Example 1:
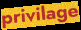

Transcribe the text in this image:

privilage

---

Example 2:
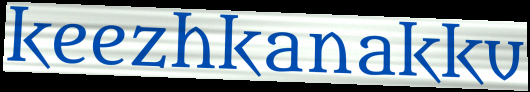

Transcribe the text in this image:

keezhkanakku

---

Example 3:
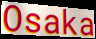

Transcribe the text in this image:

Osaka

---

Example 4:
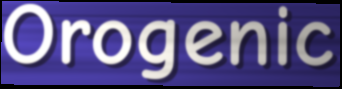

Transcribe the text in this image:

Orogenic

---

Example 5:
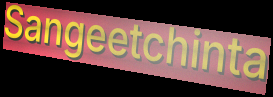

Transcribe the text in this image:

Sangeetchinta